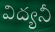
విద్యనీ